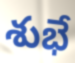
శుభే